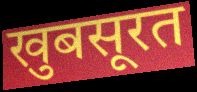
खुबसूरत